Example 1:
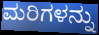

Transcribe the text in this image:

ಮರಿಗಳನ್ನು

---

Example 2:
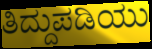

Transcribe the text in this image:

ತಿದ್ದುಪಡಿಯು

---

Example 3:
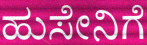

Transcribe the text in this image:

ಹುಸೇನಿಗೆ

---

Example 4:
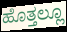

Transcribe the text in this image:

ಹೊತ್ತಲ್ಲೂ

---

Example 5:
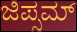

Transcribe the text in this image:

ಜಿಪ್ಸಮ್